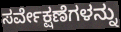
ಸರ್ವೇಕ್ಷಣೆಗಳನ್ನು